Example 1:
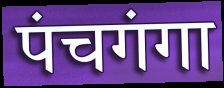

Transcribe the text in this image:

पंचगंगा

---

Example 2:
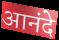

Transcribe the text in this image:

आनंदे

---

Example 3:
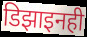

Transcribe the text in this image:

डिझाइनही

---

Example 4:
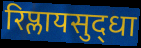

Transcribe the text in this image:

रिप्लायसुद्धा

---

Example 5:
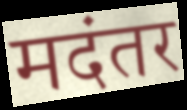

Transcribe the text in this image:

मदंतर